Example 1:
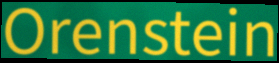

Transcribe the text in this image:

Orenstein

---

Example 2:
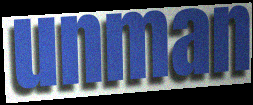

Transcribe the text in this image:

unman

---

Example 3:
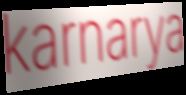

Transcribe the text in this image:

karnarya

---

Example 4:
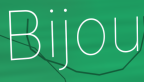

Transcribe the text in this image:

Bijou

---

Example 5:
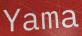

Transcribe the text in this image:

Yama